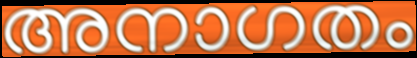
അനാഗതം